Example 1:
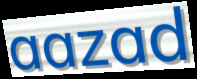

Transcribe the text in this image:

aazad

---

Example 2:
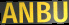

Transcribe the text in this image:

ANBU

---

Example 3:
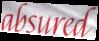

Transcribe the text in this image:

absured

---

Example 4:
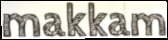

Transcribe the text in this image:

makkam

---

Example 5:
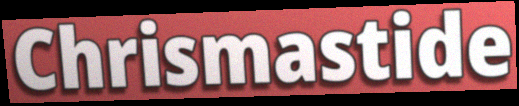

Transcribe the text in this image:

Chrismastide